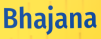
Bhajana